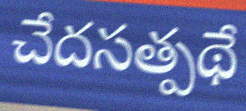
చేదసత్పథే